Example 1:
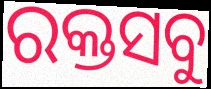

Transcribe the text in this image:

ରକ୍ତସବୁ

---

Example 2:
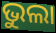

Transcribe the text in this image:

ଭୁଲା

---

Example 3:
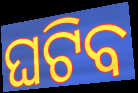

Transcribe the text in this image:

ଘଟିବ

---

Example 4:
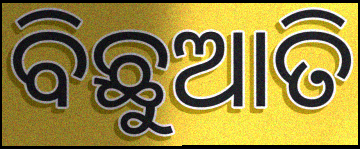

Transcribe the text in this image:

ବିଛୁଆତି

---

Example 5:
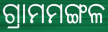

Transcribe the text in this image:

ଗ୍ରାମମଙ୍ଗଳ